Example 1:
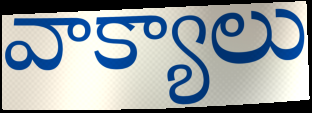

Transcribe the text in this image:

వాక్యాలు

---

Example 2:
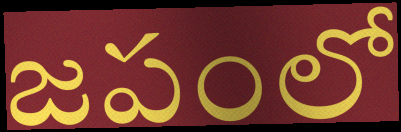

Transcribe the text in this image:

జపంలో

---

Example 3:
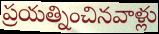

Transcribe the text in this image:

ప్రయత్నించినవాళ్లు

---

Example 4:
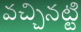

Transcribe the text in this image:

వచ్చినట్టి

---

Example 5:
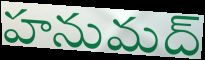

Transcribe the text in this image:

హనుమద్